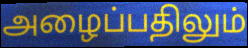
அழைப்பதிலும்